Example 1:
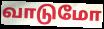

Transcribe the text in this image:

வாடுமோ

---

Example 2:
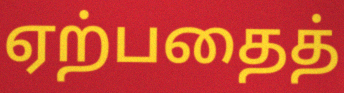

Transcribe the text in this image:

ஏற்பதைத்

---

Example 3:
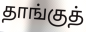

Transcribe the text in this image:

தாங்குத்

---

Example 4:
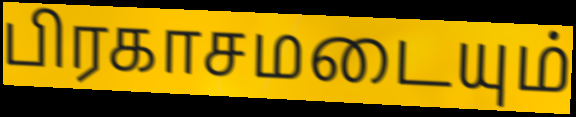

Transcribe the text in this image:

பிரகாசமடையும்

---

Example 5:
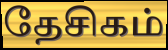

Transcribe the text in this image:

தேசிகம்